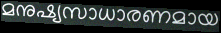
മനുഷ്യസാധാരണമായ